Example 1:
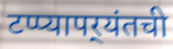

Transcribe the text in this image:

टप्प्यापर्यंतची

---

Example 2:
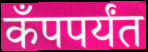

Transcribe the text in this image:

कँपपर्यंत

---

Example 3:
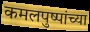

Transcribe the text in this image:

कमलपुष्पांच्या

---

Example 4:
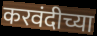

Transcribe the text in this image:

करवंदीच्या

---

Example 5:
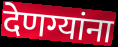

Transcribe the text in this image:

देणग्यांना